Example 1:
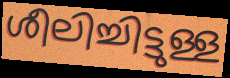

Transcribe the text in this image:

ശീലിച്ചിട്ടുള്ള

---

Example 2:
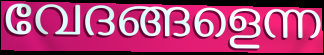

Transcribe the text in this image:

വേദങ്ങളെന്ന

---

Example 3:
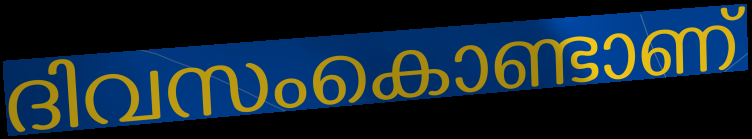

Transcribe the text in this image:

ദിവസംകൊണ്ടാണ്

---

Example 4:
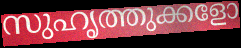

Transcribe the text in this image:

സുഹൃത്തുക്കളോ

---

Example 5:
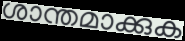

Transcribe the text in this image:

ശാന്തമാക്കുക